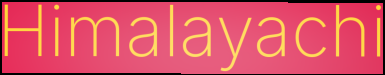
Himalayachi